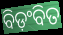
ବିଡ଼ଂବିତ